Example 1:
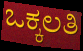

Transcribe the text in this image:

ಒಕ್ಕಲತಿ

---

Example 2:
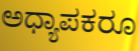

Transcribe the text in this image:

ಅಧ್ಯಾಪಕರೂ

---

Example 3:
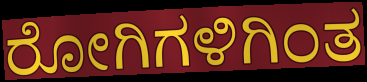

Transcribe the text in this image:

ರೋಗಿಗಳಿಗಿಂತ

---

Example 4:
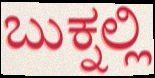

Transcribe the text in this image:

ಬುಕ್ನಲ್ಲಿ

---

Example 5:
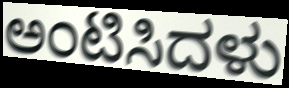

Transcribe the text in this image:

ಅಂಟಿಸಿದಳು